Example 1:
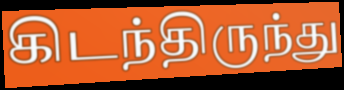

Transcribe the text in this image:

கிடந்திருந்து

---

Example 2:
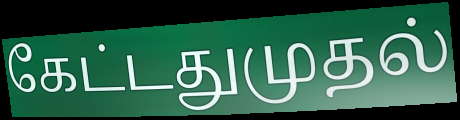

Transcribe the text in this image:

கேட்டதுமுதல்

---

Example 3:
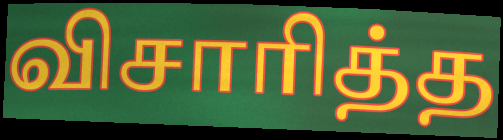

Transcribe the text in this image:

விசாரித்த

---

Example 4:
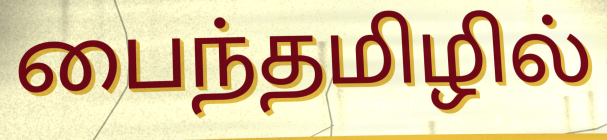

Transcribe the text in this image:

பைந்தமிழில்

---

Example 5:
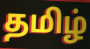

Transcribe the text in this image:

தமிழ்